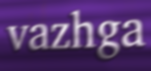
vazhga